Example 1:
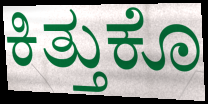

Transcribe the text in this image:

ಕಿತ್ತುಕೊ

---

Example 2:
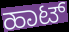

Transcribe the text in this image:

ಹಾಟ್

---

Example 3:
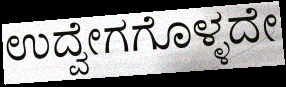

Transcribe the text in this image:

ಉದ್ವೇಗಗೊಳ್ಳದೇ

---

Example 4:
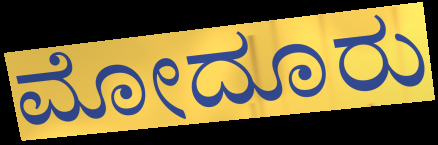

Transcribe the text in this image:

ಮೋದೂರು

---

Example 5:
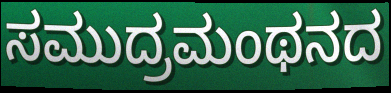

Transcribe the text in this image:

ಸಮುದ್ರಮಂಥನದ